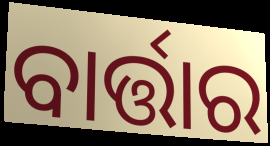
ବାର୍ତ୍ତାର